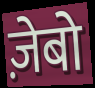
ज़ेबो